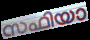
സഫിയാ